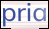
pria